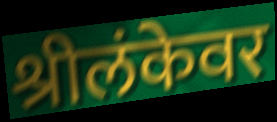
श्रीलंकेवर